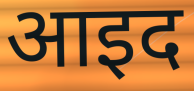
आइद